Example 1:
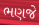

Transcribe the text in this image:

ભણજે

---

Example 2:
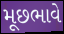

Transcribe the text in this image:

મૂછભાવે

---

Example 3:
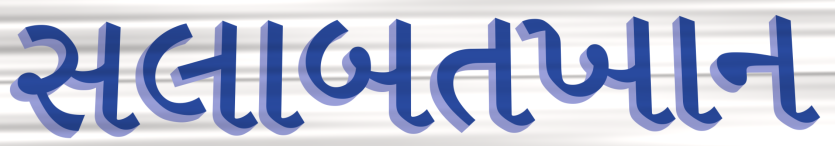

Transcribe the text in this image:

સલાબતખાન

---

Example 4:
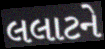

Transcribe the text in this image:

લલાટને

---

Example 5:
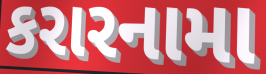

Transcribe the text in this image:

કરારનામા